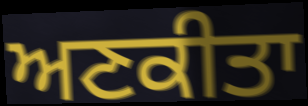
ਅਣਕੀਤਾ